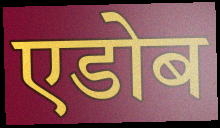
एडोब